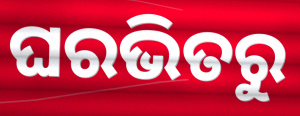
ଘରଭିତରୁ